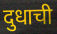
दुधाची